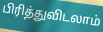
பிரித்துவிடலாம்